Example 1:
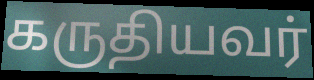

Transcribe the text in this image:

கருதியவர்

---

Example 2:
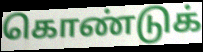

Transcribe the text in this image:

கொண்டுக்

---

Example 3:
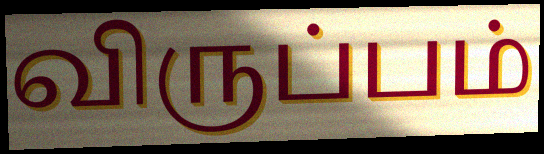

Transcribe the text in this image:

விருப்பம்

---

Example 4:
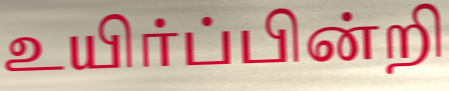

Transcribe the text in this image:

உயிர்ப்பின்றி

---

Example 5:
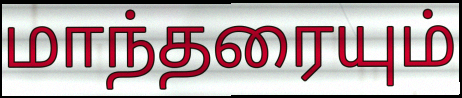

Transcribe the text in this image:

மாந்தரையும்